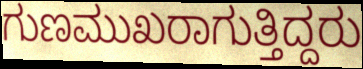
ಗುಣಮುಖರಾಗುತ್ತಿದ್ದರು